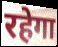
रहेगा